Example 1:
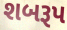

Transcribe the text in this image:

શબરૂપ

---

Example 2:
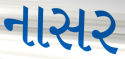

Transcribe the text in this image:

નાસર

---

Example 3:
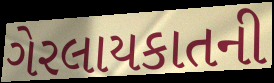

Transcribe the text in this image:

ગેરલાયકાતની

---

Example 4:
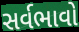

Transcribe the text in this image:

સર્વભાવો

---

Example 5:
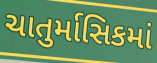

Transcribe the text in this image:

ચાતુર્માસિકમાં